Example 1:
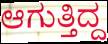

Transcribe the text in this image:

ಆಗುತ್ತಿದ್ದ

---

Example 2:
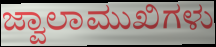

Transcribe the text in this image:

ಜ್ವಾಲಾಮುಖಿಗಳು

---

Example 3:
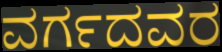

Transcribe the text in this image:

ವರ್ಗದವರ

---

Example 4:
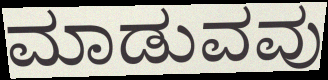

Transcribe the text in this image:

ಮಾಡುವವು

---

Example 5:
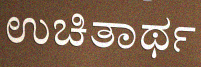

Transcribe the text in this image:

ಉಚಿತಾರ್ಥ